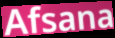
Afsana